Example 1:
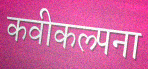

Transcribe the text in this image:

कवीकल्पना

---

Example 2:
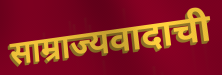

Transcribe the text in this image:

साम्राज्यवादाची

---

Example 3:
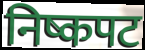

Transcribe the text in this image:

निष्कपट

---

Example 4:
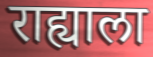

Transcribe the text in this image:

राह्याला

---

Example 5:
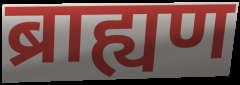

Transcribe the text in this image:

ब्राह्यण